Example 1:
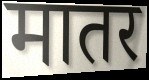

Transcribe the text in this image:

मातर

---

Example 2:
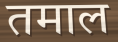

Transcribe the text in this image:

तमाल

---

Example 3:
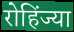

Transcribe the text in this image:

रोहिंज्या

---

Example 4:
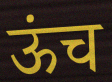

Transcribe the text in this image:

ऊंच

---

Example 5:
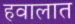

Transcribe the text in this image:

हवालात